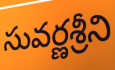
సువర్ణశ్రీని